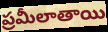
ప్రమీలాతాయి